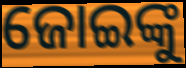
ଜୋଇଙ୍କୁ